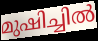
മുഷിച്ചിൽ